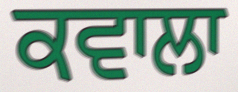
ਕਵਾਲਾ